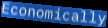
Economically